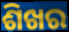
ଶିଖର